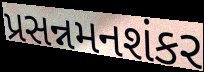
પ્રસન્નમનશંકર